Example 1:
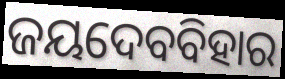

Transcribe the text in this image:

ଜୟଦେବବିହାର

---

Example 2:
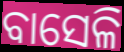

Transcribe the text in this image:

ବାସେଳି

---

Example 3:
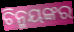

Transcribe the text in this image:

ଚିନ୍ମୟଙ୍କର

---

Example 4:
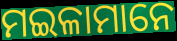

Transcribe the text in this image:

ମଇଳାମାନେ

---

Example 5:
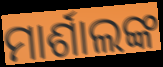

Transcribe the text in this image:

ମାର୍ଶାଲଙ୍କ